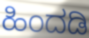
ಹಿಂದಡಿ